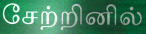
சேற்றினில்